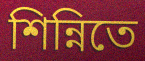
শিন্নিতে